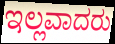
ಇಲ್ಲವಾದರು